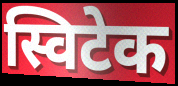
स्विटेक